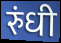
रुंधी